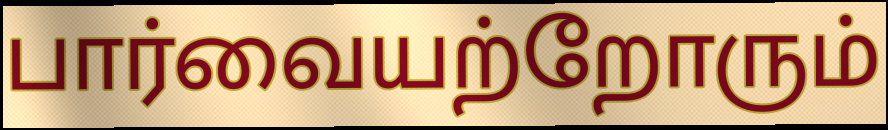
பார்வையற்றோரும்